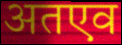
अतएव